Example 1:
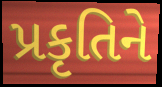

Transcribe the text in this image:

પ્રકૃતિને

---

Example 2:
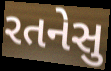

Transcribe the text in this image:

રતનેસુ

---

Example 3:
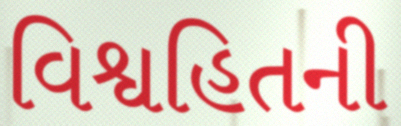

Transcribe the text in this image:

વિશ્વહિતની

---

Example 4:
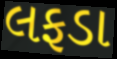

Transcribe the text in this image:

લફડા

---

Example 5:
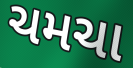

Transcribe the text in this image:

ચમચા